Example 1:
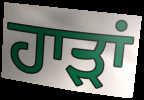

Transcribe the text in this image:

ਹਾੜਾਂ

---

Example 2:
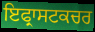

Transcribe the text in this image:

ਇਫ੍ਰਾਸਟਕਚਰ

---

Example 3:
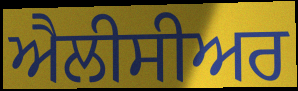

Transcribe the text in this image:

ਐਲੀਸੀਅਰ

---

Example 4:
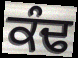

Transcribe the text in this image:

ਕੰਢ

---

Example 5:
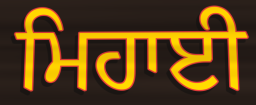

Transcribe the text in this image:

ਮਿਹਾਈ